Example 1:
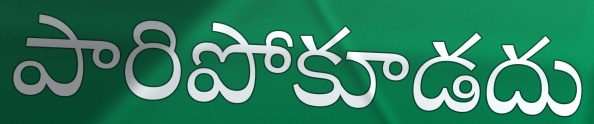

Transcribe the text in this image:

పారిపోకూడదు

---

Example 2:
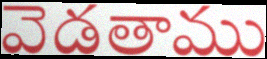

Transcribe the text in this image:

వెడతాము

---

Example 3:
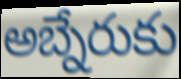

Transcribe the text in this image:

అబ్నేరుకు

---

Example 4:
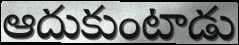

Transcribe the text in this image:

ఆదుకుంటాడు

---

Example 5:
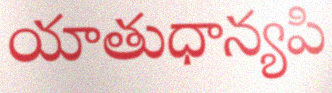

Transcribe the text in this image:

యాతుధాన్యపి